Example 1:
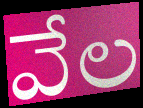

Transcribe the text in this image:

వేల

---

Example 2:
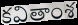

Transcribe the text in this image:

కవితాంశ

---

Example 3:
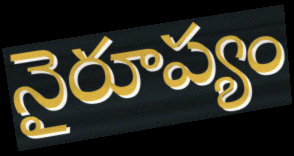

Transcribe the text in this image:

నైరూప్యం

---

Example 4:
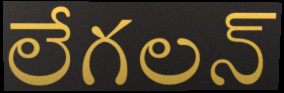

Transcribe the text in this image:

లేగలన్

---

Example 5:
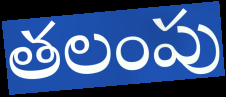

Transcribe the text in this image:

తలంపు